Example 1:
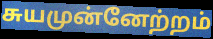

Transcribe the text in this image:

சுயமுன்னேற்றம்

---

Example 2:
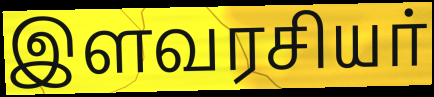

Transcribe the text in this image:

இளவரசியர்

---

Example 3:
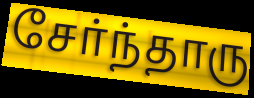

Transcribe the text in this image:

சேர்ந்தாரு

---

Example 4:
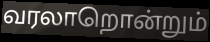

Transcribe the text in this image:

வரலாறொன்றும்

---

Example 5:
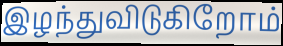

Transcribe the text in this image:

இழந்துவிடுகிறோம்